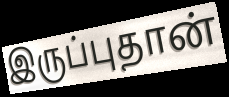
இருப்புதான்